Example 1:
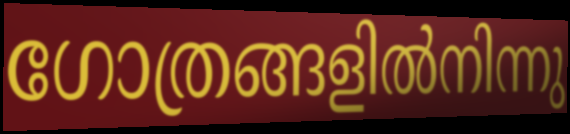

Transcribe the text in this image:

ഗോത്രങ്ങളിൽനിന്നു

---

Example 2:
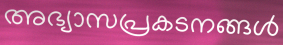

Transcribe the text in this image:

അഭ്യാസപ്രകടനങ്ങൾ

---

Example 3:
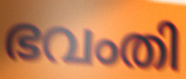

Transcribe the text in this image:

ഭവംതി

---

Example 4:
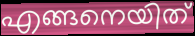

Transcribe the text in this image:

എങ്ങനെയിത്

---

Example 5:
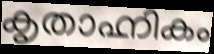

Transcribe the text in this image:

കൃതാഹ്നികം